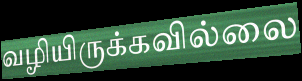
வழியிருக்கவில்லை